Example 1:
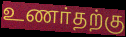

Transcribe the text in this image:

உணர்தற்கு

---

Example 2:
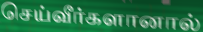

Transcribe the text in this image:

செய்வீர்களானால்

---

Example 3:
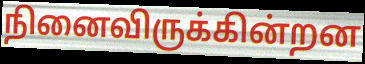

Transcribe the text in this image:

நினைவிருக்கின்றன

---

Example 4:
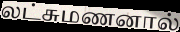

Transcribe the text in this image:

லட்சுமணனால்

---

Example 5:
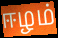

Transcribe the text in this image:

ஈழம்